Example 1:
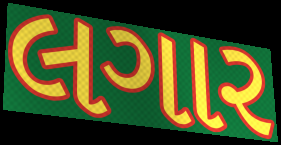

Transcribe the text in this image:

લગાર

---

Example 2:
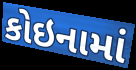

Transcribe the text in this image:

કોઇનામાં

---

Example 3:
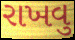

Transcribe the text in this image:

રાખવુ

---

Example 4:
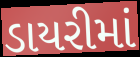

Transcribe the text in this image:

ડાયરીમાં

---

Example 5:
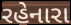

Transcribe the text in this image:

રહેનારા